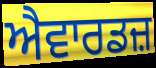
ਐਵਾਰਡਜ਼